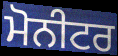
ਮੋਨੀਟਰ